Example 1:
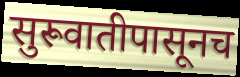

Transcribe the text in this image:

सुरूवातीपासूनच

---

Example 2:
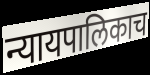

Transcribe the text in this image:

न्यायपालिकाच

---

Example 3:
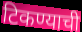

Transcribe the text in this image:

टिकण्याची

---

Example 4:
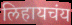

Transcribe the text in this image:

लिहायचंय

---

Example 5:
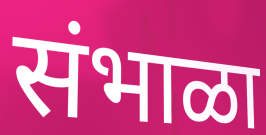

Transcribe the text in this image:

संभाळा